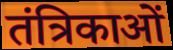
तंत्रिकाओं